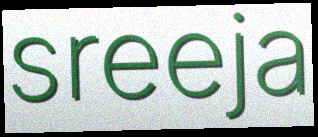
sreeja